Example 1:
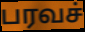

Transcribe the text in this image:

பரவச்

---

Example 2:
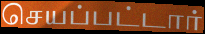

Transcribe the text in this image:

செயப்பட்டார்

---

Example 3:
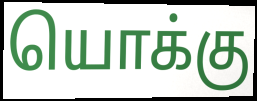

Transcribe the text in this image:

யொக்கு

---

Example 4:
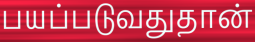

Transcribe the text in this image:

பயப்படுவதுதான்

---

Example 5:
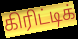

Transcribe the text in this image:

கிரிட்டிக்